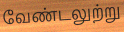
வேண்டலுற்று